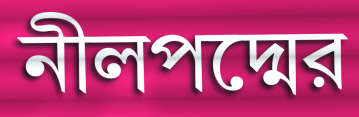
নীলপদ্মের